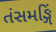
તંસમઙ્ગિં